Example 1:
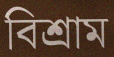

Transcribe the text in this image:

বিশ্রাম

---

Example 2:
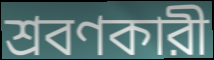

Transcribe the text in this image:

শ্রবণকারী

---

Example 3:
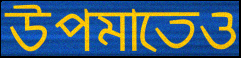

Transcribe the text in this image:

উপমাতেও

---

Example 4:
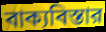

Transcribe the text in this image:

বাক্যবিস্তার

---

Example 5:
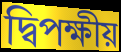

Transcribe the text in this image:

দ্বিপক্ষীয়